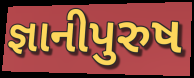
જ્ઞાનીપુરુષ